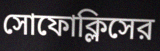
সোফোক্লিসের